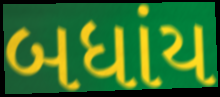
બધાંય